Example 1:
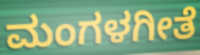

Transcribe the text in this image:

ಮಂಗಳಗೀತೆ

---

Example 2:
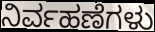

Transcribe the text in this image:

ನಿರ್ವಹಣೆಗಳು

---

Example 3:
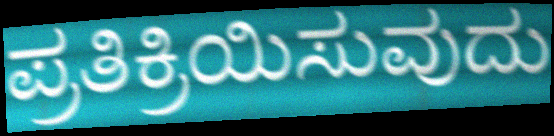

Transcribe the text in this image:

ಪ್ರತಿಕ್ರಿಯಿಸುವುದು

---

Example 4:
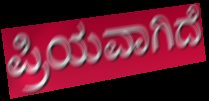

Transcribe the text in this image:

ಪ್ರಿಯವಾಗಿದೆ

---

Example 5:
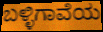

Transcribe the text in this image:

ಬಳ್ಳಿಗಾವೆಯ